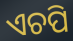
ଏଚପି